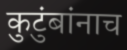
कुटुंबांनाच